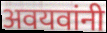
अवयवांनी